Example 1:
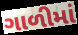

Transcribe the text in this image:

ગાળીમાં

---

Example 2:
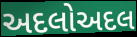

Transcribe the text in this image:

અદલોઅદલ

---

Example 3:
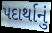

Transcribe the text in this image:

પદાર્થાનું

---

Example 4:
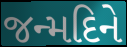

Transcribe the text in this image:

જન્મદિને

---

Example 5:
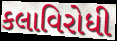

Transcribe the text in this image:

કલાવિરોધી